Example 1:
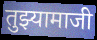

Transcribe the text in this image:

तुझ्यामाजी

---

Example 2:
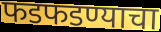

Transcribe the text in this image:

फडफडण्याचा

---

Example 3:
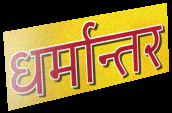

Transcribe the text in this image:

धर्मान्तर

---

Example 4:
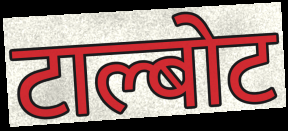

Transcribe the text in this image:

टाल्बोट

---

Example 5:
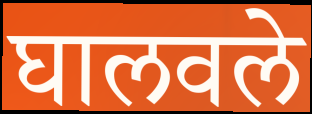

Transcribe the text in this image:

घालवले